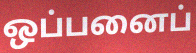
ஒப்பனைப்